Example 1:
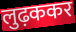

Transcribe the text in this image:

लुढ़ककर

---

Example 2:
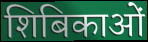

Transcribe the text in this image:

शिबिकाओं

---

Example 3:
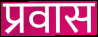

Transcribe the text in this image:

प्रवास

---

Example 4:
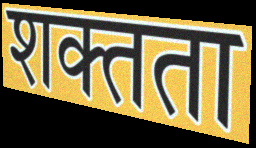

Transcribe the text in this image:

शक्तता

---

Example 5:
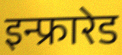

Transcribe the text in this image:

इन्फ्रारेड